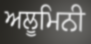
ਅਲੂਮਿਨੀ